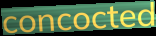
concocted